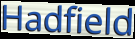
Hadfield